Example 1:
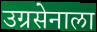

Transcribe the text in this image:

उग्रसेनाला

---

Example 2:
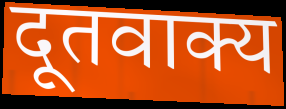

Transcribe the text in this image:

दूतवाक्य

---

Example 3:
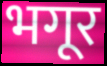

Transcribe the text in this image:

भगूर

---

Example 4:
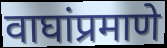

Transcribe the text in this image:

वाघांप्रमाणे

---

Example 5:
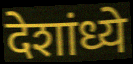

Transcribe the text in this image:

देशांध्ये